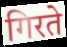
गिरते